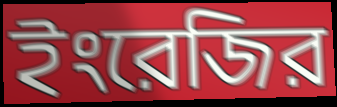
ইংরেজির